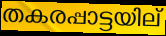
തകരപ്പാട്ടയില്